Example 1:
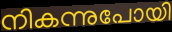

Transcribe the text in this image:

നികന്നുപോയി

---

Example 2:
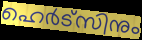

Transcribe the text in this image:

ഹെർട്സിനും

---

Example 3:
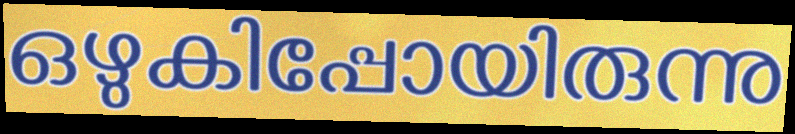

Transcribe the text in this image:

ഒഴുകിപ്പോയിരുന്നു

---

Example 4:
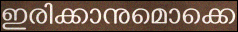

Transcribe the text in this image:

ഇരിക്കാനുമൊക്കെ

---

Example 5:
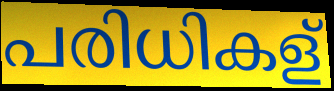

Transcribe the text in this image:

പരിധികള്